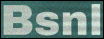
Bsnl